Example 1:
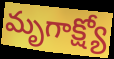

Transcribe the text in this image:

మృగాక్ష్యో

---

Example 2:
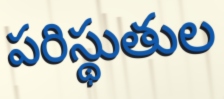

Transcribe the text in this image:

పరిస్థుతుల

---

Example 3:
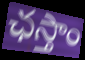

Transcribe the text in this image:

ఛస్తాం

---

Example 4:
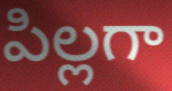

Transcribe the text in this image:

పిల్లగా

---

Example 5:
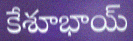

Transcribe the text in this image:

కేశూభాయ్